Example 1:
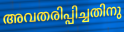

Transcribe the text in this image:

അവതരിപ്പിച്ചതിനു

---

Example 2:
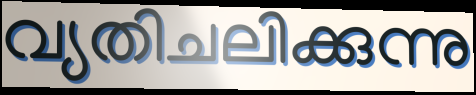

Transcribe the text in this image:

വ്യതിചലിക്കുന്നു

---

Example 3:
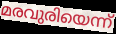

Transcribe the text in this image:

മരവുരിയെന്ന്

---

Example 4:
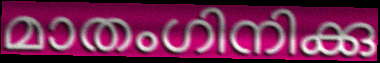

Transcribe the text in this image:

മാതംഗിനിക്കു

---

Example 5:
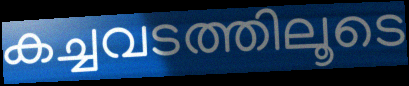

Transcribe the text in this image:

കച്ചവടത്തിലൂടെ